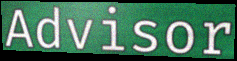
Advisor